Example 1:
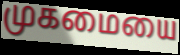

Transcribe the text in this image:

முகமையை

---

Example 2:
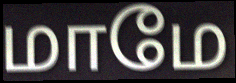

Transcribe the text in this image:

மாமே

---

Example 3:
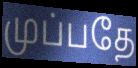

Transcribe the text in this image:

முப்பதே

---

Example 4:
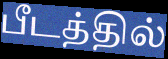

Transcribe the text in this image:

பீடத்தில்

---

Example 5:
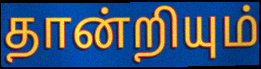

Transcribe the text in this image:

தான்றியும்